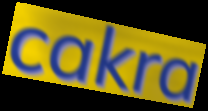
cakra